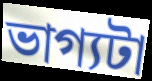
ভাগ্যটা